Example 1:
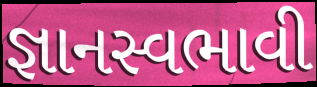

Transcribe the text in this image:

જ્ઞાનસ્વભાવી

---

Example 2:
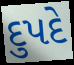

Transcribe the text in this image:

દુપદે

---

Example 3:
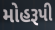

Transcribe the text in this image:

મોહરૂપી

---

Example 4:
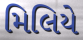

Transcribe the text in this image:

મિલિયે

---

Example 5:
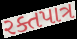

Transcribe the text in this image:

રક્તપાત્ર